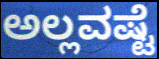
ಅಲ್ಲವಷ್ಟೆ